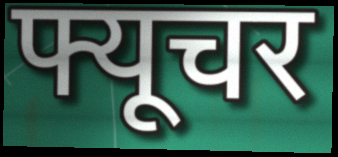
फ्यूचर